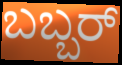
ಬಬ್ಬರ್